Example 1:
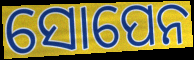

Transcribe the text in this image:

ସୋପେନ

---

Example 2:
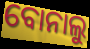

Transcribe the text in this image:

ବୋନାଲୁ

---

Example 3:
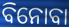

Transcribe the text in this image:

ବିନୋବା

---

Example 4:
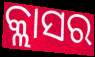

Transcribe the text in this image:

କ୍ଲାସର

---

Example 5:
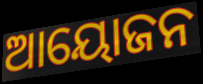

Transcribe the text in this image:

ଆୟୋଜନ